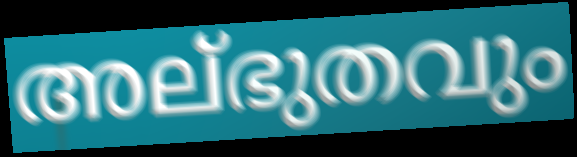
അല്ഭുതവും